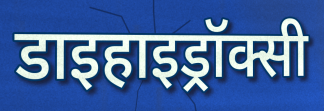
डाइहाइड्रॉक्सी